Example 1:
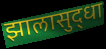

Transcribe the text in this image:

झालासुद्धा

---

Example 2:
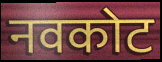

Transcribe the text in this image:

नवकोट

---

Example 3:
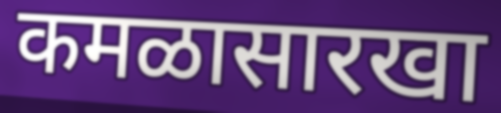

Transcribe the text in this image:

कमळासारखा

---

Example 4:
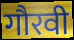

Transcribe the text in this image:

गौरवी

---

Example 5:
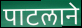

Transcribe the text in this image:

पाटलाने